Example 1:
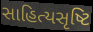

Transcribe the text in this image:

સાહિત્યસૃષ્ટિ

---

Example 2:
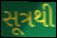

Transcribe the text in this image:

સૂત્રથી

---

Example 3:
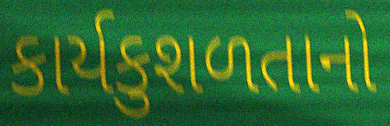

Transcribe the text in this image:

કાર્યકુશળતાનો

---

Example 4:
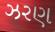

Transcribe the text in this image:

ઝરણ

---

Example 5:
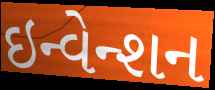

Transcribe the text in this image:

ઇન્વેન્શન